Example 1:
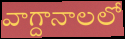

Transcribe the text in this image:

వాగ్దానాలలో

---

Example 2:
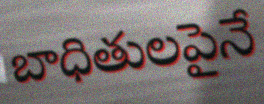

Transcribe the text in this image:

బాధితులపైనే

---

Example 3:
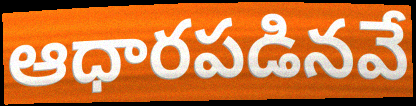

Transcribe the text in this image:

ఆధారపడినవే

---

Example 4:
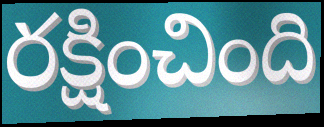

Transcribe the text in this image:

రక్షించింది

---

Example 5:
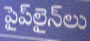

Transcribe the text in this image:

పైప్‌లైన్‌లు